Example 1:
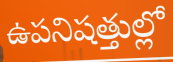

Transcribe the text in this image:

ఉపనిషత్తుల్లో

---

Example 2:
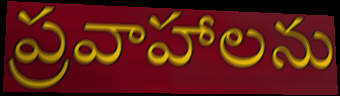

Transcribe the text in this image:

ప్రవాహాలను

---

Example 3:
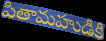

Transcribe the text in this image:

పితామహుడికి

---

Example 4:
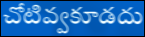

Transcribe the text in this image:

చోటివ్వకూడదు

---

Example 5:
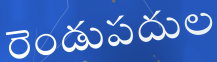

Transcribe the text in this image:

రెండుపదుల